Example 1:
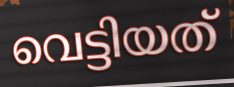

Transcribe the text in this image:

വെട്ടിയത്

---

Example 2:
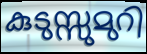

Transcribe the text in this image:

കുടുസ്സുമുറി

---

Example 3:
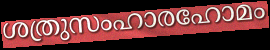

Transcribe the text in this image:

ശത്രുസംഹാരഹോമം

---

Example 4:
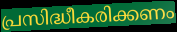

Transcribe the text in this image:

പ്രസിദ്ധീകരിക്കണം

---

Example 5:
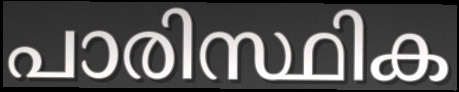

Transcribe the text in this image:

പാരിസ്ഥിക